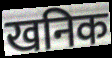
खनिक